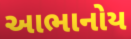
આભાનોય